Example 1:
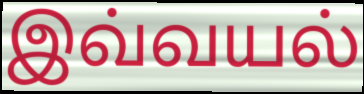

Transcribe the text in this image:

இவ்வயல்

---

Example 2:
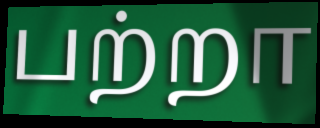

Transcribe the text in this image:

பற்றா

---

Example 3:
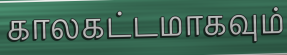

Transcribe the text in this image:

காலகட்டமாகவும்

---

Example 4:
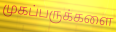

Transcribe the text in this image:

முகப்பருக்களை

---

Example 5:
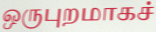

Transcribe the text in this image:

ஒருபுறமாகச்